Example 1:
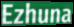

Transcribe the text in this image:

Ezhuna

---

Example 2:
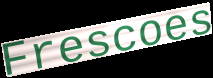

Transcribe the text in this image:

Frescoes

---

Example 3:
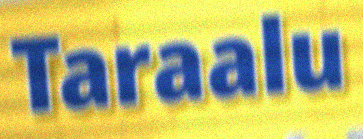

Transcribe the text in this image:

Taraalu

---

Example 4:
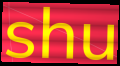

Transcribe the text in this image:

shu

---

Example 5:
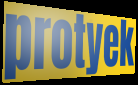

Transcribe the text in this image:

protyek